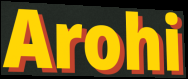
Arohi